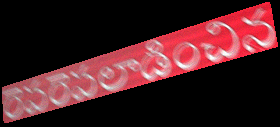
రెపరెపలాడించిన